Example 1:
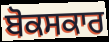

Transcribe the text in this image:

ਬੋਕਸਕਾਰ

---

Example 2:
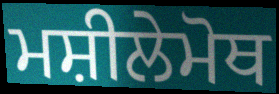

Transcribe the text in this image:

ਮਸ਼ੀਲੇਮੋਥ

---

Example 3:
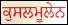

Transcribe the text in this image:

ਕੁਸਲਮੂਲੇਨ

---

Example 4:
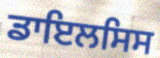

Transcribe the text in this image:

ਡਾਇਲਸਿਸ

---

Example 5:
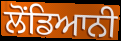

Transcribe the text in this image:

ਲੋਂਡਿਆਨੀ